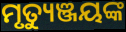
ମୃତ୍ୟୁଞ୍ଜୟଙ୍କ